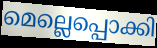
മെല്ലെപ്പൊക്കി